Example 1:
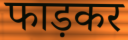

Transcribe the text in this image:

फाड़कर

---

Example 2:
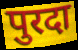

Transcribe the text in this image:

पुरदा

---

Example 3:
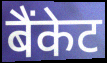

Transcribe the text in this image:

बैंकेट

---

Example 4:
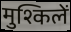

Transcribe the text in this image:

मुश्किलें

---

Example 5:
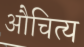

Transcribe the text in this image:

औचित्‍य